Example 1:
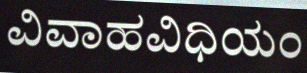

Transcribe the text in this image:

ವಿವಾಹವಿಧಿಯಂ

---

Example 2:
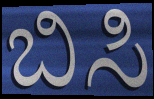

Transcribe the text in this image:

ಬಿಸಿ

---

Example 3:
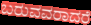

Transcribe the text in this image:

ಬರುವವರಾದರೆ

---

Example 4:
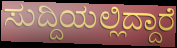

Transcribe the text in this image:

ಸುದ್ದಿಯಲ್ಲಿದ್ದಾರೆ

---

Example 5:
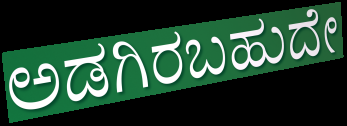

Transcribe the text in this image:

ಅಡಗಿರಬಹುದೇ